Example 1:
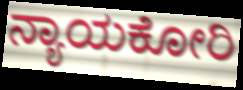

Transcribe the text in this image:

ನ್ಯಾಯಕೋರಿ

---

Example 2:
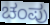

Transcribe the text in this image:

ಚಂಪು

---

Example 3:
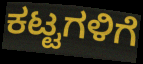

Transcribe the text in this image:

ಕಟ್ಟಗಳಿಗೆ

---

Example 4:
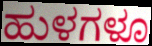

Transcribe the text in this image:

ಹುಳಗಳೂ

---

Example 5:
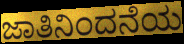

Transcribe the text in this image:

ಜಾತಿನಿಂದನೆಯ